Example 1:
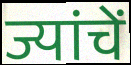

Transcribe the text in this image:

ज्यांचें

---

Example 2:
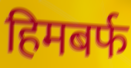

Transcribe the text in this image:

हिमबर्फ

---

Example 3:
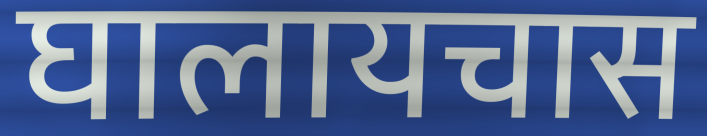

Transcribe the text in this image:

घालायचास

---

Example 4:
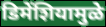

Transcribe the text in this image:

डिमेंशियामुळे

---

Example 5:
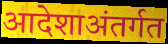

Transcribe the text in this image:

आदेशाअंतर्गत